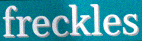
freckles